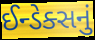
ઈન્ડેક્સનું